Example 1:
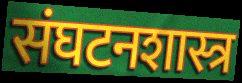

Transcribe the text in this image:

संघटनशास्त्र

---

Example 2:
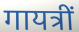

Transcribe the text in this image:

गायत्रीं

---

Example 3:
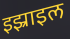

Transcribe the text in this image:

इझ्राइल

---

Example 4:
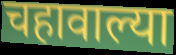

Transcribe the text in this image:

चहावाल्या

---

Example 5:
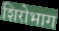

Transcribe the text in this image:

शिरोभाग